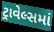
ટ્રાવેલ્સમાં